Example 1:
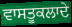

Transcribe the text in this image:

ਵਾਸਤੂਕਲਾਦੇ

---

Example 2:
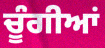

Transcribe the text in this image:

ਚੂੰਗੀਆਂ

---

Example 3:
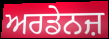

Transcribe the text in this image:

ਅਰਡੇਨਜ਼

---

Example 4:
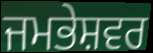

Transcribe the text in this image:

ਜਮਭੇਸ਼ਵਰ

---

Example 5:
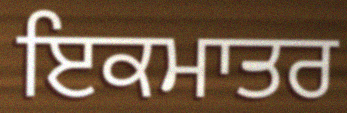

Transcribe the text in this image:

ਇਕਮਾਤਰ